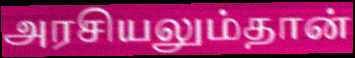
அரசியலும்தான்